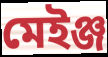
মেইঞ্জ